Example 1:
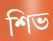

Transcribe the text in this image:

শিভ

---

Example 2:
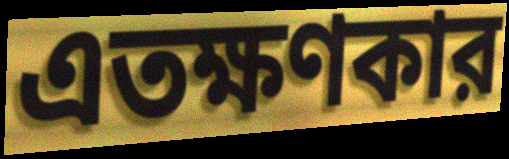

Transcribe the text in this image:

এতক্ষণকার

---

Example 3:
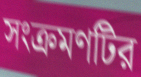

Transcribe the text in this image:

সংক্রমণটির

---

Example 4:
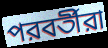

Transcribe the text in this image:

পরবর্তীরা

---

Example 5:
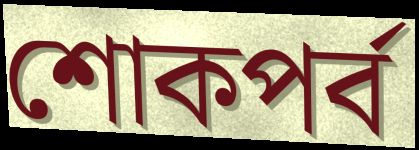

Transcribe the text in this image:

শোকপর্ব